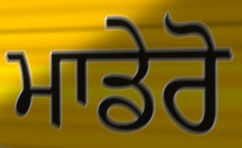
ਮਾਡੇਰੋ